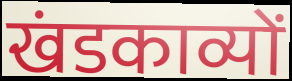
खंडकाव्यों